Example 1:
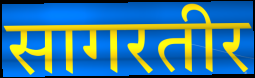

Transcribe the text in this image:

सागरतीर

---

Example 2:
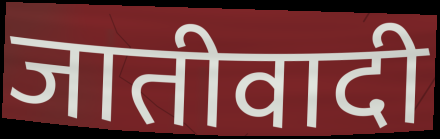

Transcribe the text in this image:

जातीवादी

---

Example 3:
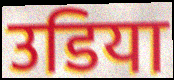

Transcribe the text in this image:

उडिया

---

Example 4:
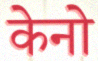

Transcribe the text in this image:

केनो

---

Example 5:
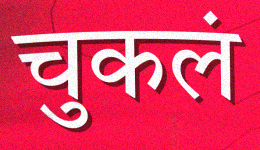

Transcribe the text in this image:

चुकलं